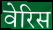
वेरिस